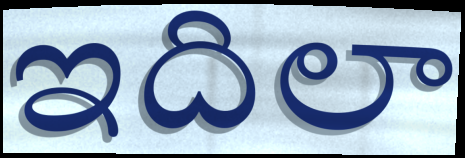
ఇదిలా